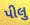
પીલુ